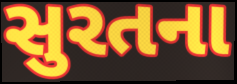
સુરતના